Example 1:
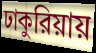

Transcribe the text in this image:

ঢাকুরিয়ায়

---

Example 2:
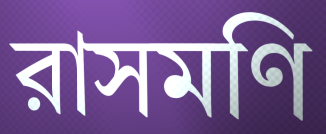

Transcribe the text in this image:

রাসমণি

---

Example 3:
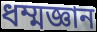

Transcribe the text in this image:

ধম্মজ্ঞান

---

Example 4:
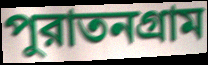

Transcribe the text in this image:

পুরাতনগ্রাম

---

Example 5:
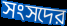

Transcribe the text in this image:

সংসদের